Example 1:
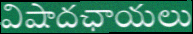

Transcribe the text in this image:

విషాదఛాయలు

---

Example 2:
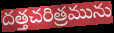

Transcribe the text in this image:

దత్తచరిత్రమును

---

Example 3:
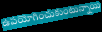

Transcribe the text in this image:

ఉపయోగించుకుంటున్నాయి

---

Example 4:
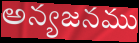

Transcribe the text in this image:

అన్యజనము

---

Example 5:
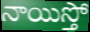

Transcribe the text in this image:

నాయిస్తో